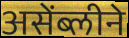
असेंब्लीने